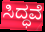
ಸಿದ್ಧವೆ